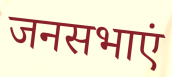
जनसभाएं